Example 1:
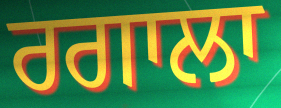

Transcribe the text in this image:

ਰਗਾਲਾ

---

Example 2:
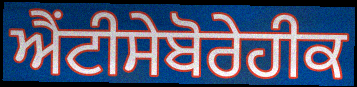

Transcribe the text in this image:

ਐਂਟੀਸੇਬੋਰੇਹੀਕ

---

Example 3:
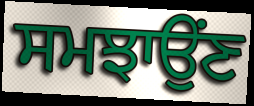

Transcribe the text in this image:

ਸਮਝਾਉਂਣ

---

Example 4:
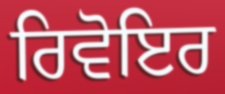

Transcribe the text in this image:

ਰਿਵੋਇਰ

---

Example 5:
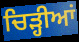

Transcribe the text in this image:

ਚਿੜ੍ਹੀਆਂ